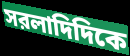
সরলাদিদিকে